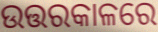
ଉତ୍ତରକାଳରେ